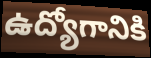
ఉద్యోగానికి